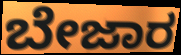
ಬೇಜಾರ